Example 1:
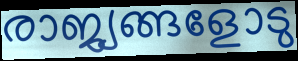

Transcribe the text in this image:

രാജ്യങ്ങളോടു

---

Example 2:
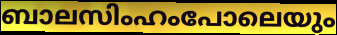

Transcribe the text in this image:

ബാലസിംഹംപോലെയും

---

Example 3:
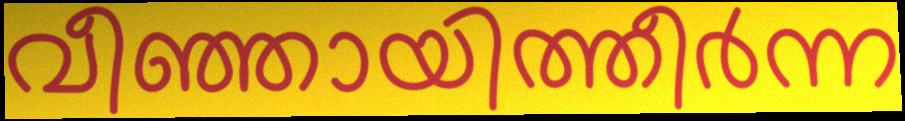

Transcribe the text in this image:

വീഞ്ഞായിത്തീർന്ന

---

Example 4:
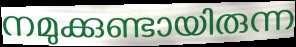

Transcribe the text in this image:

നമുക്കുണ്ടായിരുന്ന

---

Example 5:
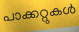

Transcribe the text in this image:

പാക്കറ്റുകൾ